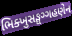
ભિક્ખુસઙ્ઘગ્ગહણેન